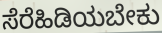
ಸೆರೆಹಿಡಿಯಬೇಕು